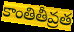
కాంతితీవ్రత